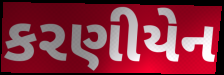
કરણીયેન